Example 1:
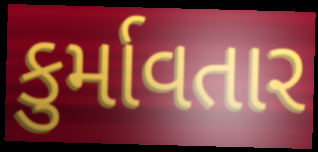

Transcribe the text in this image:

કુર્માવતાર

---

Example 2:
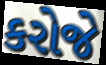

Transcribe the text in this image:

કરોજે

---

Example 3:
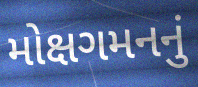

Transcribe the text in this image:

મોક્ષગમનનું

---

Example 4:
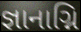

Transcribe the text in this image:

જ્ઞાનાગ્નિ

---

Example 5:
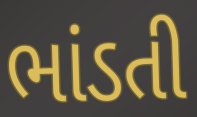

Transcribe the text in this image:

ભાંડતી